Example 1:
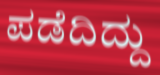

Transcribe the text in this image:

ಪಡೆದಿದ್ದು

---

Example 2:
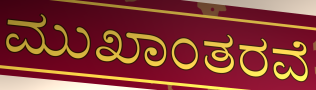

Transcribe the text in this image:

ಮುಖಾಂತರವೆ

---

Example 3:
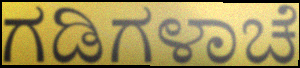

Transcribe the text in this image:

ಗಡಿಗಳಾಚೆ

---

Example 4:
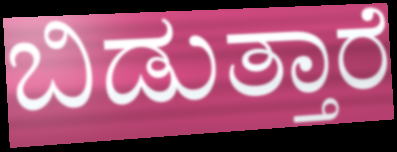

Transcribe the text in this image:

ಬಿಡುತ್ತಾರೆ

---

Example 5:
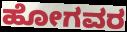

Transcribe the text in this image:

ಹೋಗವರ